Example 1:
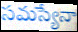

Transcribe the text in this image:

సమస్యేనా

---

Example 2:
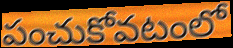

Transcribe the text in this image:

పంచుకోవటంలో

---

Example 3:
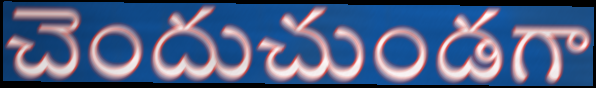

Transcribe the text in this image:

చెందుచుండగా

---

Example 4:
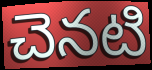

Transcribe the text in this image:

చెనటి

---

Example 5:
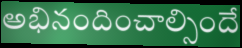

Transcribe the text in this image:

అభినందించాల్సిందే